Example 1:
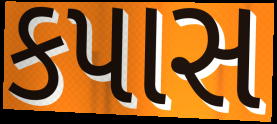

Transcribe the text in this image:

કપાસ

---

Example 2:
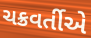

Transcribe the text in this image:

ચક્રવર્તીએ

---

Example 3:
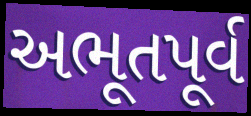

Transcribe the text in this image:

અભૂતપૂર્વ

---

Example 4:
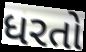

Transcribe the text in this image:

ધરતો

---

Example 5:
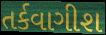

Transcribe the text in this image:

તર્કવાગીશ